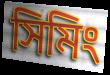
সিমিং